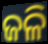
ଜଳି